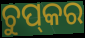
ଚୁପ୍‌କର